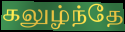
கலுழ்ந்தே